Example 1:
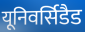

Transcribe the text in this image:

यूनिवर्सिडैड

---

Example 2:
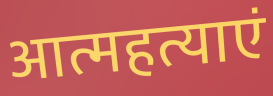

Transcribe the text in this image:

आत्महत्याएं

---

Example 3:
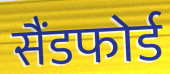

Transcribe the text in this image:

सैंडफोर्ड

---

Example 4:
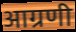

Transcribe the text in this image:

आग्रणी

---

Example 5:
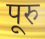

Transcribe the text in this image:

पूरु